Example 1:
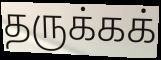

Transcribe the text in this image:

தருக்கக்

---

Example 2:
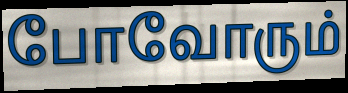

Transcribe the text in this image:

போவோரும்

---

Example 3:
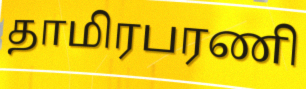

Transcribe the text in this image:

தாமிரபரணி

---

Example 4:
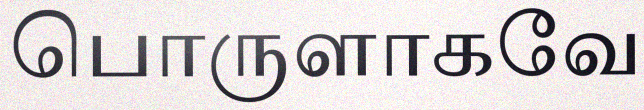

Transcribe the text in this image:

பொருளாகவே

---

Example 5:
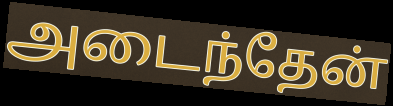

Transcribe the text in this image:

அடைந்தேன்